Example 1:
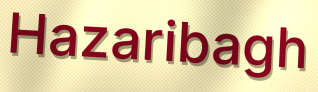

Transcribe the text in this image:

Hazaribagh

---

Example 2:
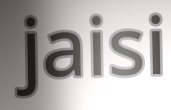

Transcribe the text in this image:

jaisi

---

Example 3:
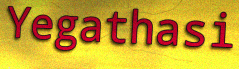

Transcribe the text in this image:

Yegathasi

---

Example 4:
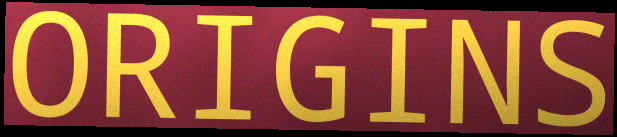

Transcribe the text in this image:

ORIGINS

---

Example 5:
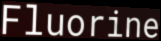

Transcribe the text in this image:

Fluorine